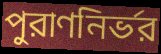
পুরাণনির্ভর